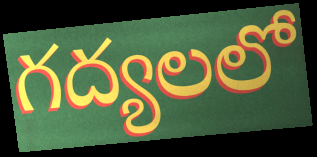
గద్యలలో